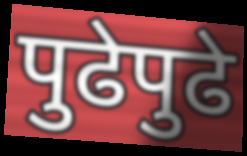
पुढेपुढे